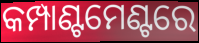
କମ୍ପାଣ୍ଟମେଣ୍ଟରେ